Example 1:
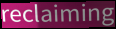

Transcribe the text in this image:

reclaiming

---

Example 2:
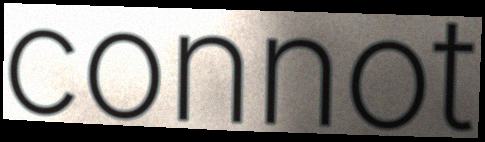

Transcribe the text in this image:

connot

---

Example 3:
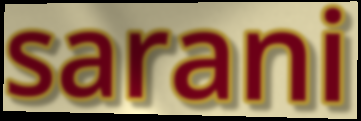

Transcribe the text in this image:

sarani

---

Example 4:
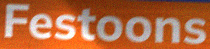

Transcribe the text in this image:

Festoons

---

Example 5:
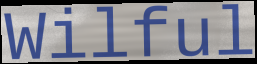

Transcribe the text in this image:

Wilful